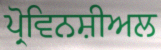
ਪ੍ਰੋਵਿਨਸ਼ੀਅਲ